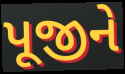
પૂજીને